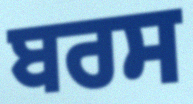
ਬਰਸ